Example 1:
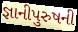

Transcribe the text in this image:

જ્ઞાનીપુરુષની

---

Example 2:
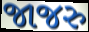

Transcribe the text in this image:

જાજરુ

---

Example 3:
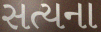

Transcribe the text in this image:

સત્યના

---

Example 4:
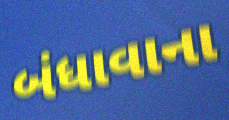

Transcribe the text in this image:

બંધાવાના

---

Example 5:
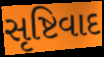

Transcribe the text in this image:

સૃષ્ટિવાદ